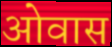
ओवास